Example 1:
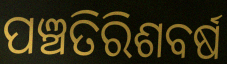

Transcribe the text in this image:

ପଞ୍ଚତିରିଶବର୍ଷ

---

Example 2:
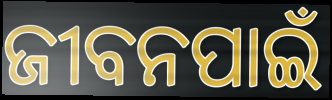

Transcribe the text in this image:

ଜୀବନପାଇଁ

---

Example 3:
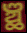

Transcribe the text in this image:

ଞ୍ଛ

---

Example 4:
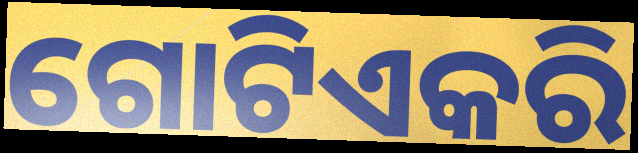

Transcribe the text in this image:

ଗୋଟିଏକରି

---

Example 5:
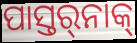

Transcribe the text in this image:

ପାସ୍ତର୍‍ନାକ୍